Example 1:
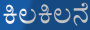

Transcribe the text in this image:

ಕಿಲಕಿಲನೆ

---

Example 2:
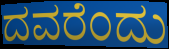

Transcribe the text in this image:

ದವರೆಂದು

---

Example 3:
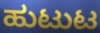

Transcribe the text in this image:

ಹುಟುಟ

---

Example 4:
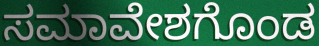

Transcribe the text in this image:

ಸಮಾವೇಶಗೊಂಡ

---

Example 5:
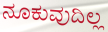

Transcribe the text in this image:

ನೂಕುವುದಿಲ್ಲ